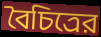
বৈচিত্রের